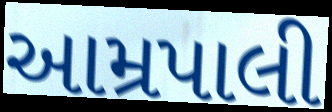
આમ્રપાલી